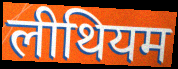
लीथियम